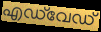
എഡ്‌വേഡ്